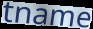
tname